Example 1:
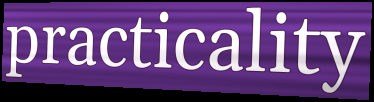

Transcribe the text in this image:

practicality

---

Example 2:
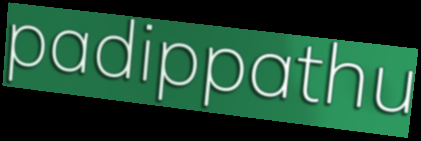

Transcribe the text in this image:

padippathu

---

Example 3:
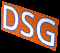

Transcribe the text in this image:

DSG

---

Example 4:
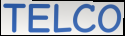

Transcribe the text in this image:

TELCO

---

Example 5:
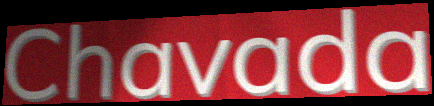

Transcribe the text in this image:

Chavada